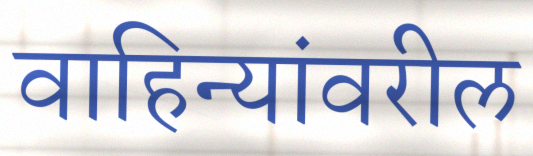
वाहिन्यांवरील